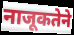
नाजूकतेने